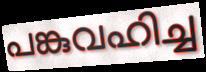
പങ്കുവഹിച്ച